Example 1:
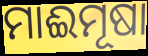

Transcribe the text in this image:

ମାଈମୂଷା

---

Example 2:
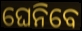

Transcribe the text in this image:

ଘେନିବେ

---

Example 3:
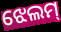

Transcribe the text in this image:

ଝେଲମ୍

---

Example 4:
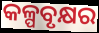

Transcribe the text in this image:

କଳ୍ପବୃକ୍ଷର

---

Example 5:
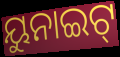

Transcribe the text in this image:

ୟୁନାଇଟ୍